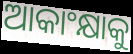
ଆକାଂକ୍ଷାକୁ